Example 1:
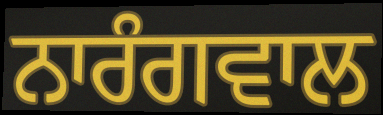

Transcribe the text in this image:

ਨਾਰੰਗਵਾਲ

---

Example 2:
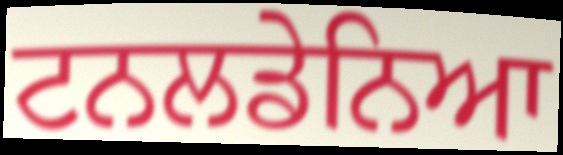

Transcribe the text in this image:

ਟਨਲਡੇਨਿਆ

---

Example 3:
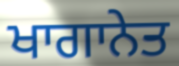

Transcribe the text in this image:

ਖਾਗਾਨੇਤ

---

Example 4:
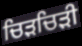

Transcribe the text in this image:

ਚਿੜਚਿੜੀ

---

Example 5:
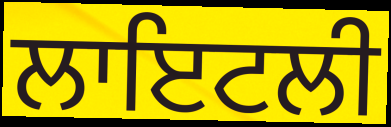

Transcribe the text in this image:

ਲਾਇਟਲੀ